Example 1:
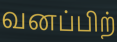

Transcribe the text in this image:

வனப்பிற்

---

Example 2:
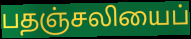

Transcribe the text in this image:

பதஞ்சலியைப்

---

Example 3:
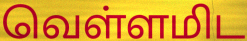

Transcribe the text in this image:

வெள்ளமிட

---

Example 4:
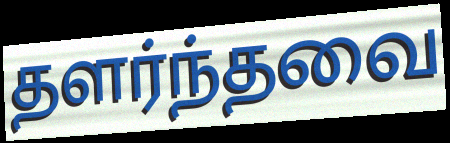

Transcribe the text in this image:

தளர்ந்தவை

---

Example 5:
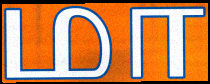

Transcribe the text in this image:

மா